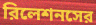
রিলেশনসের